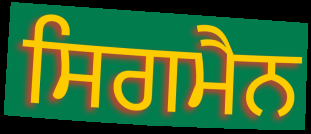
ਸਿਗਮੈਨ